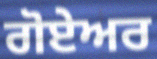
ਗੋਏਅਰ